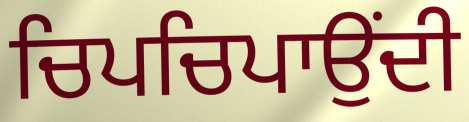
ਚਿਪਚਿਪਾਉਂਦੀ